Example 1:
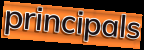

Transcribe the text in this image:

principals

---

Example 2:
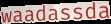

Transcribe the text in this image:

waadassda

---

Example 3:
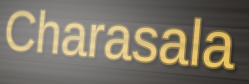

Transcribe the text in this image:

Charasala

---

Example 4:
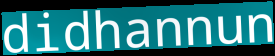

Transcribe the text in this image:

didhannun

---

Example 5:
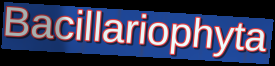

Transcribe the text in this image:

Bacillariophyta